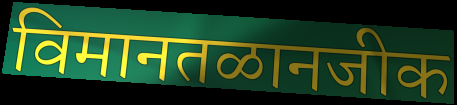
विमानतळानजीक